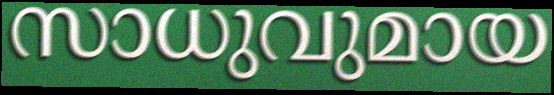
സാധുവുമായ